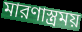
মারণাস্ত্রময়